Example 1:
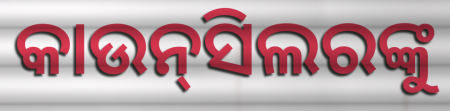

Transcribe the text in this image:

କାଉନ୍‌ସିଲରଙ୍କୁ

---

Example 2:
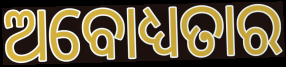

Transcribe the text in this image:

ଅବୋଧ୍ୟତାର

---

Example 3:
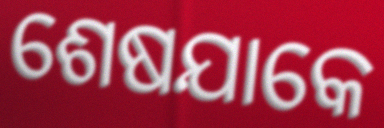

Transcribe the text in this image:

ଶେଷଯାକେ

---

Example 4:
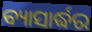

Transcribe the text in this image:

ବ୍ୟାସାର୍ଦ୍ଧର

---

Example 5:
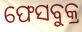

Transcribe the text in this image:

ଫେସବୁକ୍ର